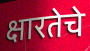
क्षारतेचे